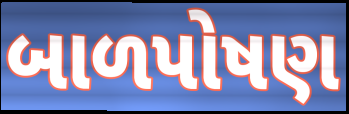
બાળપોષણ